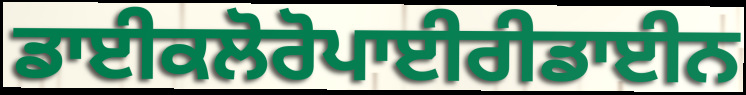
ਡਾਈਕਲੋਰੋਪਾਈਰੀਡਾਈਨ